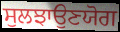
ਸੁਲਝਾਉਣਯੋਗ